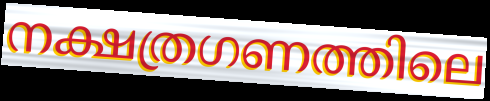
നക്ഷത്രഗണത്തിലെ